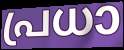
പ്രധാ